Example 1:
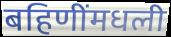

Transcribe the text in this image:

बहिणींमधली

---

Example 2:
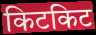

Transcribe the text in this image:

किटकिट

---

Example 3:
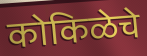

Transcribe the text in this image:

कोकिळेचे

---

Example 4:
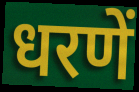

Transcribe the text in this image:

धरणें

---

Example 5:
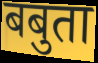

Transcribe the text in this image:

बबुता